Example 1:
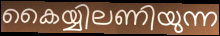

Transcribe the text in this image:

കൈയ്യിലണിയുന്ന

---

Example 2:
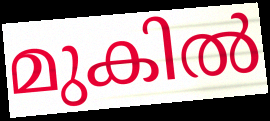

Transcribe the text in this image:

മുകിൽ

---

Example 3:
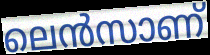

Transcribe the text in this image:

ലെൻസാണ്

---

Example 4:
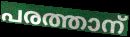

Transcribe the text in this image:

പരത്താന്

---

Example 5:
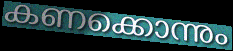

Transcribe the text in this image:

കണക്കൊന്നും